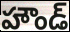
హౌండ్